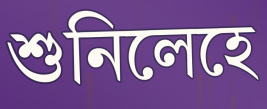
শুনিলেহে